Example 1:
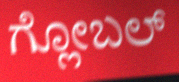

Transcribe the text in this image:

ಗ್ಲೋಬಲ್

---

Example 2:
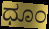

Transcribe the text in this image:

ಧೂಂ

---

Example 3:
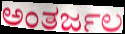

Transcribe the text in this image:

ಅಂತರ್ಜಲ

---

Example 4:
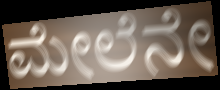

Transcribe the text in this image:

ಮೇಲೆನೇ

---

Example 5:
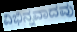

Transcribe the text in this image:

ವಿಭಿನ್ನವಾದವು